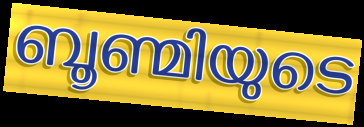
ബൂണ്മിയുടെ